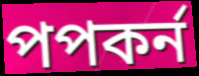
পপকর্ন